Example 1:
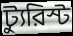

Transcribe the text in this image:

ট্যুরিস্ট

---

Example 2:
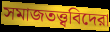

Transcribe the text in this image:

সমাজতত্ত্ববিদেরা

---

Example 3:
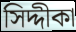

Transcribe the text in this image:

সিদ্দীকা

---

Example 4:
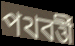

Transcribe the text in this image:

পথবর্ত্তী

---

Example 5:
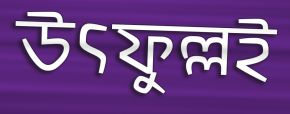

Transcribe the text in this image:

উৎফুল্লই